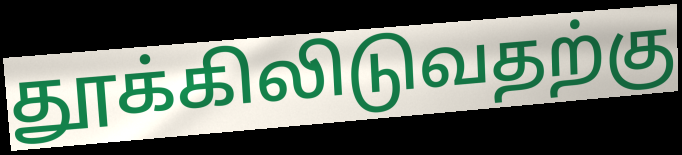
தூக்கிலிடுவதற்கு